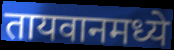
तायवानमध्ये